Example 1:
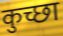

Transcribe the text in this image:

कुच्छा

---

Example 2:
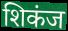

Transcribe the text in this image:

शिकंज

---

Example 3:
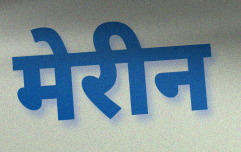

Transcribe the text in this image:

मेरीन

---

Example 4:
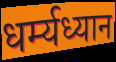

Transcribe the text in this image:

धर्म्यध्यान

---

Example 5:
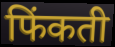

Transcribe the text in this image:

फिंकती